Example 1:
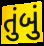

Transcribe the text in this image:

તુંબું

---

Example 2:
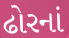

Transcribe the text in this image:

ઢોરનાં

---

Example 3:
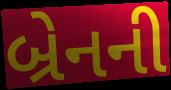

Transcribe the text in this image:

બ્રેનની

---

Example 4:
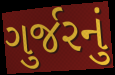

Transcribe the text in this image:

ગુર્જરનું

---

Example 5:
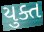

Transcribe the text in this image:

યુક્ત